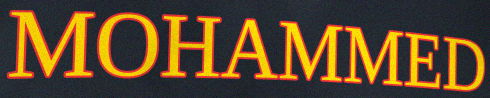
MOHAMMED